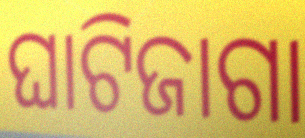
ଘାଟିଜାଗା